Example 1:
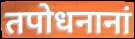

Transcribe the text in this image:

तपोधनानां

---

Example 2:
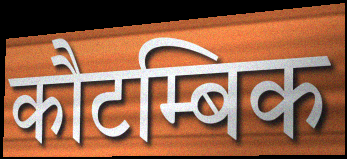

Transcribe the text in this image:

कौटम्बिक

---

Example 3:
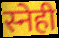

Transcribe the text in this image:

स्नेही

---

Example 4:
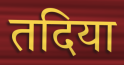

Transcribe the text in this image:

तदिया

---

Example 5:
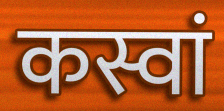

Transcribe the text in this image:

कस्वां